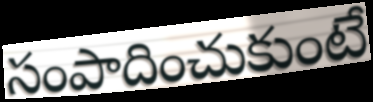
సంపాదించుకుంటే